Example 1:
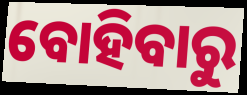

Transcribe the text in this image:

ବୋହିବାରୁ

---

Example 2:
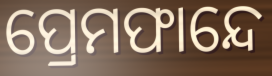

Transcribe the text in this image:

ପ୍ରେମଫାନ୍ଦେ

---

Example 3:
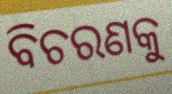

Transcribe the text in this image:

ବିଚରଣକୁ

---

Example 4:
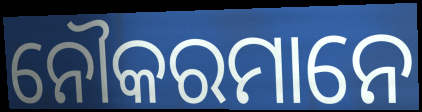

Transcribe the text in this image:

ନୌକରମାନେ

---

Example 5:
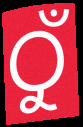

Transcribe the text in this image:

ଠୁଁ